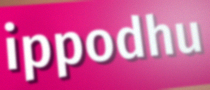
ippodhu